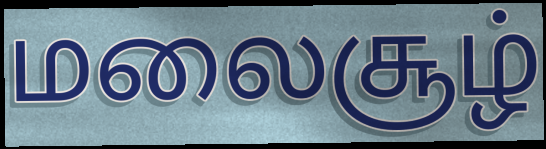
மலைசூழ்